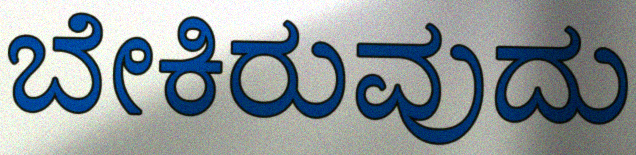
ಬೇಕಿರುವುದು